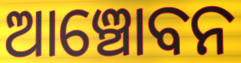
ଆଞ୍ଚୋବନ